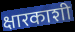
क्षारकाशी